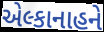
એલ્કાનાહને